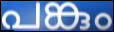
പങ്കും